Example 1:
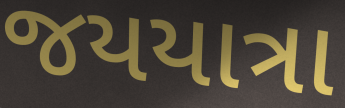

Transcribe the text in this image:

જયયાત્રા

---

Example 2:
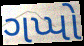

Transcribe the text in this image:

ગપ્પો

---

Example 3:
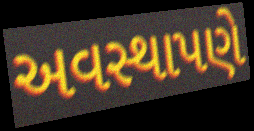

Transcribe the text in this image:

અવસ્થાપણે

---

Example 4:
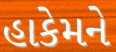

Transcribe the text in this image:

હાકેમને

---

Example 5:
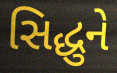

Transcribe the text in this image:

સિદ્ધુને